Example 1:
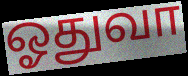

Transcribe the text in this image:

ஓதுவா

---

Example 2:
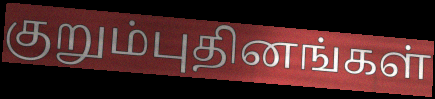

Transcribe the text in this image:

குறும்புதினங்கள்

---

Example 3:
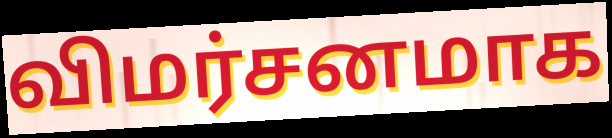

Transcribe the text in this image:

விமர்சனமாக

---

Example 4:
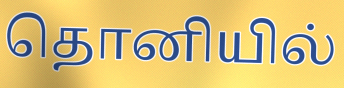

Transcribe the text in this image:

தொனியில்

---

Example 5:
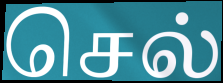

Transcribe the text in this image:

செல்